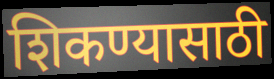
शिकण्यासाठी